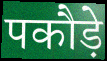
पकौड़े